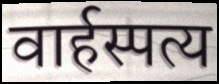
वार्हस्पत्य